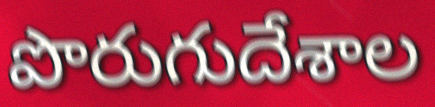
పొరుగుదేశాల